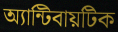
অ্যান্টিবায়টিক